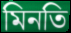
মিনতি